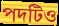
পদটিও